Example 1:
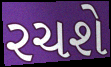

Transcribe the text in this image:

રચશે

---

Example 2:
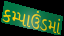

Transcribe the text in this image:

કમ્પાઉંડમાં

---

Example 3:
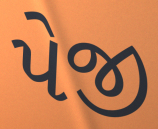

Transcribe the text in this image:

પેજી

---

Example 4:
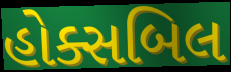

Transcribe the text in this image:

હોક્સબિલ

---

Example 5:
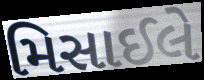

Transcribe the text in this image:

મિસાઈલે